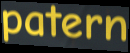
patern